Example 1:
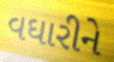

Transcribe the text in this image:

વઘારીને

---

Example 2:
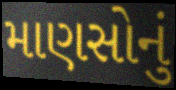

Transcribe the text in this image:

માણસોનું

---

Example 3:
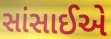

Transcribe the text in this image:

સાંસાઈએ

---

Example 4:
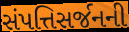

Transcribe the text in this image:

સંપત્તિસર્જનની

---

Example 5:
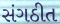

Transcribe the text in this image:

સંગઠીત